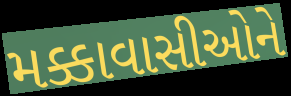
મક્કાવાસીઓને